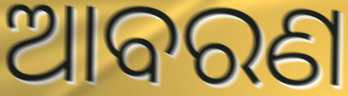
ଆବରଣ